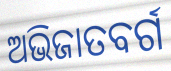
ଅଭିଜାତବର୍ଗ